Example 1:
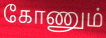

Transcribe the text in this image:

கோணும்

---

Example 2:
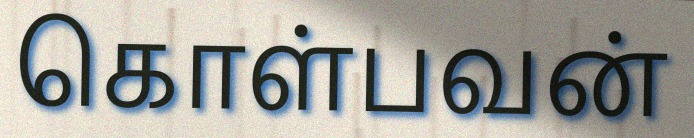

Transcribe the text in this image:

கொள்பவன்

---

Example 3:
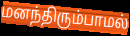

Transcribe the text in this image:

மனந்திரும்பாமல்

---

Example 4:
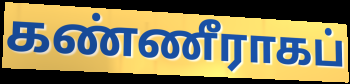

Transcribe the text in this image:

கண்ணீராகப்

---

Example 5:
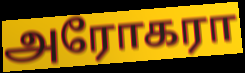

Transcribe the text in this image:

அரோகரா